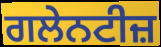
ਗਲੇਨਟੀਜ਼